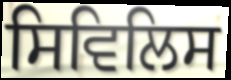
ਸਿਵਿਲਿਸ